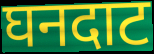
घनदाट